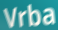
Vrba